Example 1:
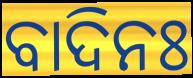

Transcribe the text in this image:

ବାଦିନଃ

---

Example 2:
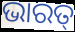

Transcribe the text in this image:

ଭାରତ୍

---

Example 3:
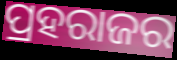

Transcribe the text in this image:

ପ୍ରହରାଜର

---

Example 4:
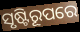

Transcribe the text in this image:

ସୃଷ୍ଟିରୂପରେ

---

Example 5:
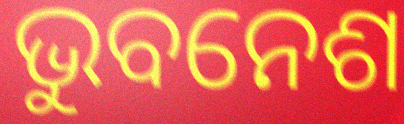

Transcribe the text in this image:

ଭୁବନେଶ